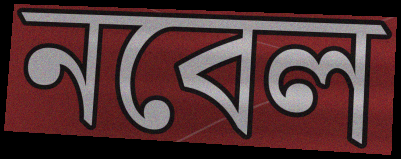
নবেল